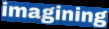
imagining